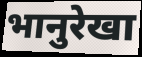
भानुरेखा